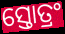
ସ୍ତୋତ୍ରଂ